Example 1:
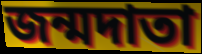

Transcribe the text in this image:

জন্মদাতা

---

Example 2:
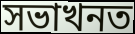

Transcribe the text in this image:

সভাখনত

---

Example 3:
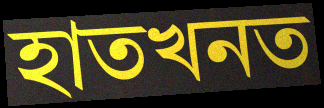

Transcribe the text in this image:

হাতখনত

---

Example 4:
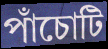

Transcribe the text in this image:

পাঁচোটি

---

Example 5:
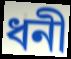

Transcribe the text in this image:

ধনী